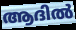
ആദിൽ